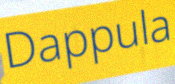
Dappula